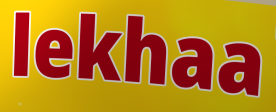
lekhaa